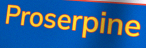
Proserpine